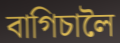
বাগিচালৈ